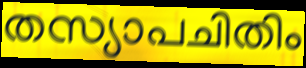
തസ്യാപചിതിം